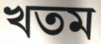
খতম